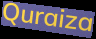
Quraiza